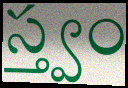
స్త్వం